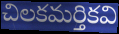
చిలకమర్తికవి